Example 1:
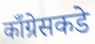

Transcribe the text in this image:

काँग्रेसकडे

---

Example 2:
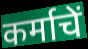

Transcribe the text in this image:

कर्माचें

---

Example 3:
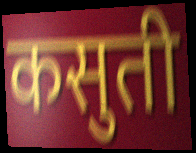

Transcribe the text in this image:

कसुती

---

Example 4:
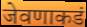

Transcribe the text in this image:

जेवणाकडं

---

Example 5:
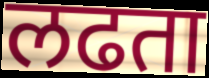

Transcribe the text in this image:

लढता